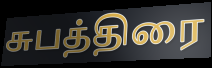
சுபத்திரை